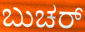
ಬುಚರ್